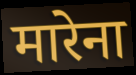
मारेना